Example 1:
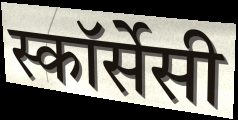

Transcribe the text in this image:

स्कॉर्सेसी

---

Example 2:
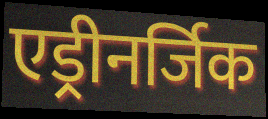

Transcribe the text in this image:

एड्रीनर्जिक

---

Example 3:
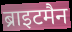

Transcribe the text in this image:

ब्राइटमैन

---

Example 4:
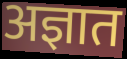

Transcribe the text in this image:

अज्ञात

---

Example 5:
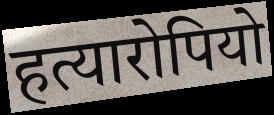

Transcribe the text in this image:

हत्यारोपियो